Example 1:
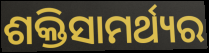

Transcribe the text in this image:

ଶକ୍ତିସାମର୍ଥ୍ୟର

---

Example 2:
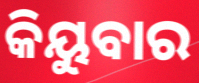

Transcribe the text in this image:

କିୟୁବାର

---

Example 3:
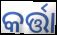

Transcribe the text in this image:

କର୍ତ୍ତା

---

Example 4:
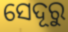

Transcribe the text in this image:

ସେଦୂରୁ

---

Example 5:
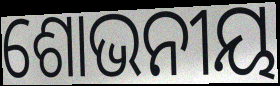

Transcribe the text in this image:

ଶୋଭନୀୟ